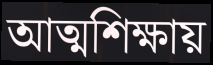
আত্মশিক্ষায়